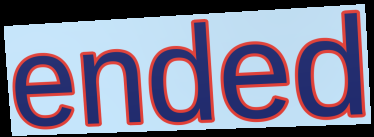
ended